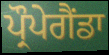
ਪ੍ਰੌਪੇਗੈਂਡਾ